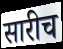
सारीच